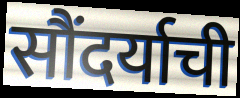
सौंदर्याची